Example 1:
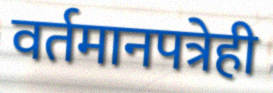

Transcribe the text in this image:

वर्तमानपत्रेही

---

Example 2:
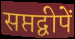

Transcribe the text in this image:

सप्तद्वीपें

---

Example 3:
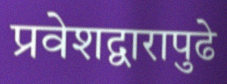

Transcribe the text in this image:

प्रवेशद्वारापुढे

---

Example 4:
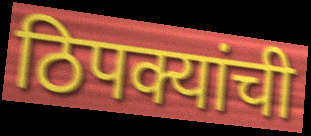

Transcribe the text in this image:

ठिपक्यांची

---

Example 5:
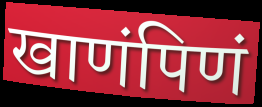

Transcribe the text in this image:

खाणंपिणं